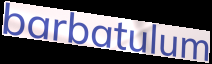
barbatulum